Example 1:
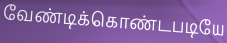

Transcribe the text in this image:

வேண்டிக்கொண்டபடியே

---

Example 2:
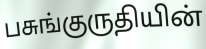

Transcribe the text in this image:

பசுங்குருதியின்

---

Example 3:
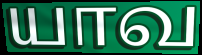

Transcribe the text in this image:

யாவ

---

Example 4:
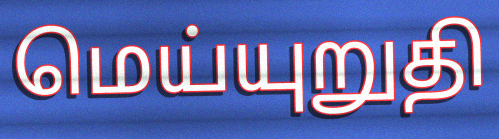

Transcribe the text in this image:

மெய்யுறுதி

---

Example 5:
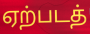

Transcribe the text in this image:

ஏற்படத்